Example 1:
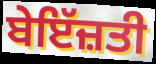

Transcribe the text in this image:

ਬੇਇੱਜ਼ਤੀ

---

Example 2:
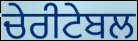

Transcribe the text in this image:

ਚੇਰੀਟੇਬਲ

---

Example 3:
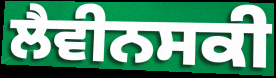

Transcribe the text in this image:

ਲੈਵੀਨਸਕੀ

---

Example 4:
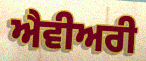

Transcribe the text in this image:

ਐਵੀਅਰੀ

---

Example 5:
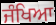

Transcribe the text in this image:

ਜੰਖਿਆ